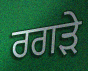
ਰਗੜੇ